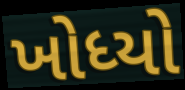
ખોધ્યો